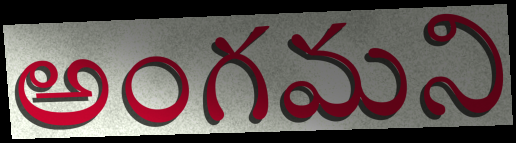
అంగమని